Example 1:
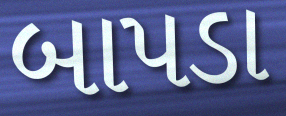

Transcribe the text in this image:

બાપડા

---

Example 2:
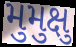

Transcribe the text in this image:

મુમુક્ષુ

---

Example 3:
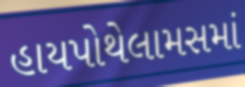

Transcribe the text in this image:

હાયપોથેલામસમાં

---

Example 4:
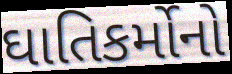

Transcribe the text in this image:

ઘાતિકર્મોનો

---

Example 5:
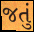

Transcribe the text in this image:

જતું